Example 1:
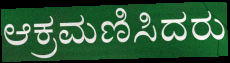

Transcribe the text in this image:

ಆಕ್ರಮಣಿಸಿದರು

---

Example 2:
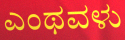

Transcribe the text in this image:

ಎಂಥವಳು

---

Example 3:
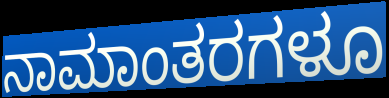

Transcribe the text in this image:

ನಾಮಾಂತರಗಳೂ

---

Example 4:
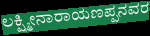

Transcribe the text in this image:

ಲಕ್ಷ್ಮೀನಾರಾಯಣಪ್ಪನವರ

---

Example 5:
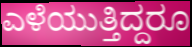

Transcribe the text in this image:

ಎಳೆಯುತ್ತಿದ್ದರೂ